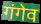
गंगेव